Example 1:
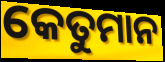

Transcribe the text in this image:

କେତୁମାନ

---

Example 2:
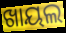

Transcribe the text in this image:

ଖାୟଲ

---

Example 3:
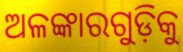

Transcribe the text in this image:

ଅଳଙ୍କାରଗୁଡ଼ିକୁ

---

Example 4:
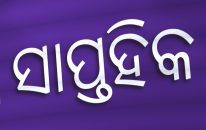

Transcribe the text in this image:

ସାପ୍ତହିକ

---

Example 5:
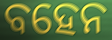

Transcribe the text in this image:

ବହେନ